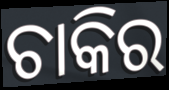
ଚାକିର